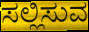
ಸಲ್ಲಿಸುವ